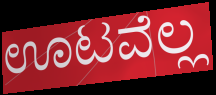
ಊಟವೆಲ್ಲ